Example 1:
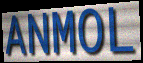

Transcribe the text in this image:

ANMOL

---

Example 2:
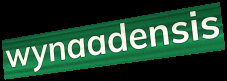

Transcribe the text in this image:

wynaadensis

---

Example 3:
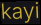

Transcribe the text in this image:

kayi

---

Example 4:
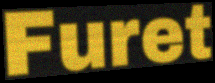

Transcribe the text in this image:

Furet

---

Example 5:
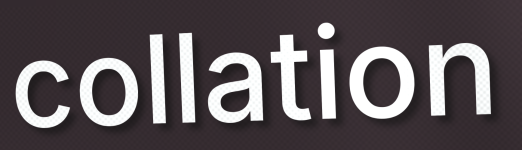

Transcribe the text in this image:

collation